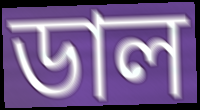
ডাল